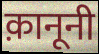
क़ानूनी